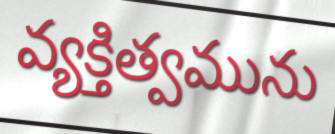
వ్యక్తిత్వమును